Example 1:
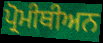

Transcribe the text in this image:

ਪ੍ਰੋਮੀਥੀਅਨ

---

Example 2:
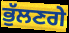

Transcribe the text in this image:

ਭੁੱਲਣਗੇ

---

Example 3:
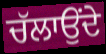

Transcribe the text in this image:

ਚੱਲਾਉਂਦੇ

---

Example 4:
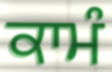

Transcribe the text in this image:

ਕਾਮੰ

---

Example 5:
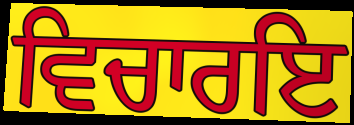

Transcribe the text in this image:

ਵਿਚਾਰਇ